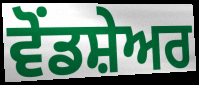
ਵੋਂਡਸ਼ੇਅਰ